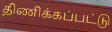
திணிக்கப்பட்டு